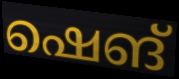
ഷെങ്